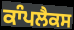
ਕਾੰਪਲੈਕਸ